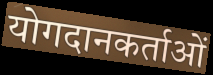
योगदानकर्ताओं